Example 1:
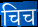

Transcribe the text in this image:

चिच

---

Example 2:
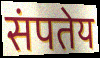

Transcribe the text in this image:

संपतेय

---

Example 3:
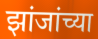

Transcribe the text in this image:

झांजांच्या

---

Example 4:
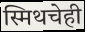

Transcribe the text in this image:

स्मिथचेही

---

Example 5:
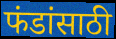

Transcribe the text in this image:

फंडांसाठी